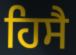
ਹਿਸੈ